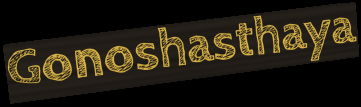
Gonoshasthaya